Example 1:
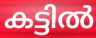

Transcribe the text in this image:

കട്ടിൽ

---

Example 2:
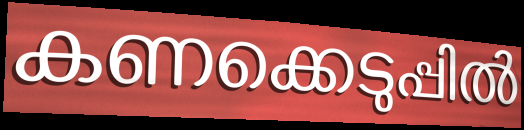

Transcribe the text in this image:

കണക്കെടുപ്പിൽ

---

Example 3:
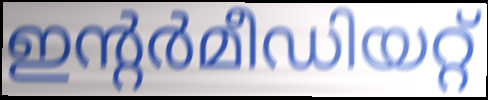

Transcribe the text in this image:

ഇന്റർമീഡിയറ്റ്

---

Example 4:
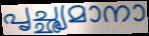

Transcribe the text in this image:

പൃച്ഛ്യമാനാ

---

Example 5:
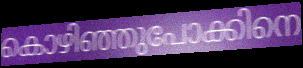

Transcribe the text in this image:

കൊഴിഞ്ഞുപോക്കിനെ